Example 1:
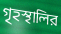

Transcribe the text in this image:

গৃহস্থালির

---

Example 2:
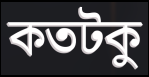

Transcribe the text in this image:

কতটকু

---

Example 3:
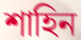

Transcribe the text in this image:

শাহিন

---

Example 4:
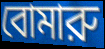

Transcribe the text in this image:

বোমারু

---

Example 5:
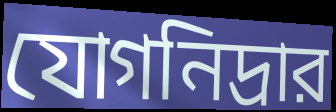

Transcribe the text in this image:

যোগনিদ্রার